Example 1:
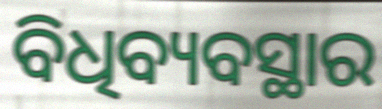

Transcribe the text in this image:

ବିଧିବ୍ୟବସ୍ଥାର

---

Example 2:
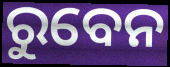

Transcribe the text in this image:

ରୁବେନ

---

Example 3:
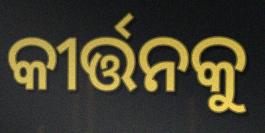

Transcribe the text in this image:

କୀର୍ତ୍ତନକୁ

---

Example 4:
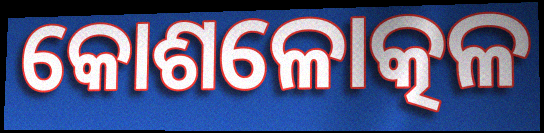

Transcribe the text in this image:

କୋଶଳୋତ୍କଳ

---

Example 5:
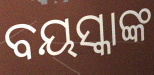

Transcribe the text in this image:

ବୟସ୍କାଙ୍କ